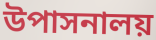
উপাসনালয়